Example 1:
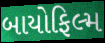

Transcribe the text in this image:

બાયોફિલ્મ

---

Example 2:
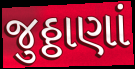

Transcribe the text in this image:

જુઠ્ઠાણાં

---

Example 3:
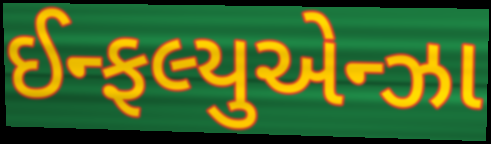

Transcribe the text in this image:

ઈન્ફલ્યુએન્ઝા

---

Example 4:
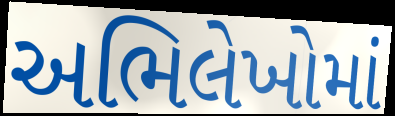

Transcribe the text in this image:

અભિલેખોમાં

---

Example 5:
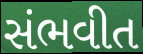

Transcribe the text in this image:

સંભવીત